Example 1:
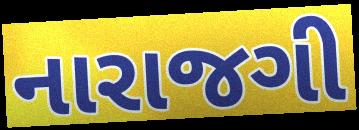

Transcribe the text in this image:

નારાજગી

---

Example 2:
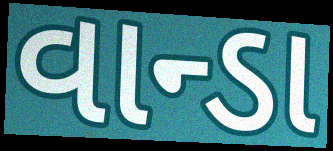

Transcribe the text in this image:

વાન્ડા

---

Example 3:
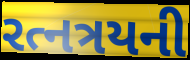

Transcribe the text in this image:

રત્નત્રયની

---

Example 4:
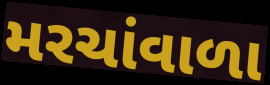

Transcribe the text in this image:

મરચાંવાળા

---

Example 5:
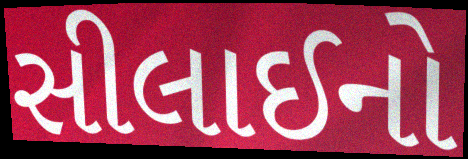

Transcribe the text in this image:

સીલાઈનો